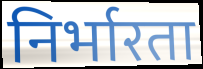
निर्भारता